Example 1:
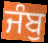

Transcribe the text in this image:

ਜੰਬੁ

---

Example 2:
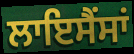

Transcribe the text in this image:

ਲਾਇਸੈਂਸਾਂ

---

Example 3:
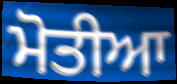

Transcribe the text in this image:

ਮੋਤੀਆ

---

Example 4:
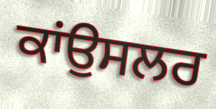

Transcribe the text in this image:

ਕਾਂਉਸਲਰ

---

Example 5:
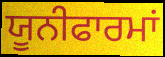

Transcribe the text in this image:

ਯੂਨੀਫਾਰਮਾਂ